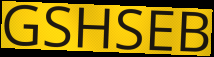
GSHSEB